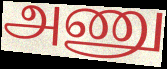
அணு